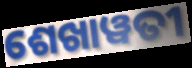
ଶେଖାୱତୀ